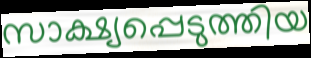
സാക്ഷ്യപ്പെടുത്തിയ